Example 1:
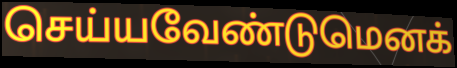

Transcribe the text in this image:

செய்யவேண்டுமெனக்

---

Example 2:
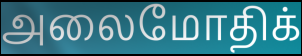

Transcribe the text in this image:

அலைமோதிக்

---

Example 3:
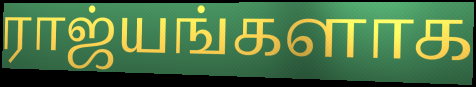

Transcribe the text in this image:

ராஜ்யங்களாக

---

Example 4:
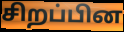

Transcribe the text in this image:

சிறப்பின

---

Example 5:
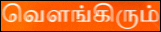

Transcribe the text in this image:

வெளங்கிரும்